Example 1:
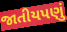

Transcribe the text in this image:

જાતીયપણું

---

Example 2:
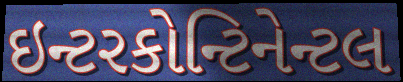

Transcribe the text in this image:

ઇન્ટરકોન્ટિનેન્ટલ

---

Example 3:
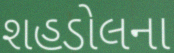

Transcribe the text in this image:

શહડોલના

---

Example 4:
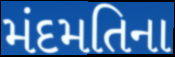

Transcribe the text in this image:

મંદમતિના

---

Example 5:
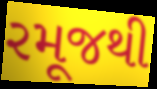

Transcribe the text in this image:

રમૂજથી